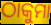
ଠାକୁମା